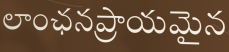
లాంఛనప్రాయమైన